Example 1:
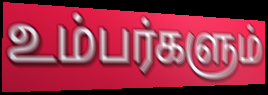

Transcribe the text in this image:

உம்பர்களும்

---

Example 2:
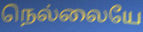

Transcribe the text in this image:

நெல்லையே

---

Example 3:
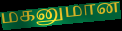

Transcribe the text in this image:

மகனுமான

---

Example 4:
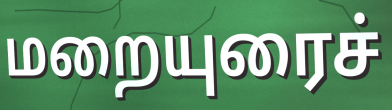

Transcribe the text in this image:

மறையுரைச்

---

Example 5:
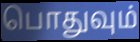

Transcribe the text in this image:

பொதுவும்